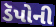
ડૅપોની